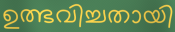
ഉത്ഭവിച്ചതായി